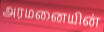
அரமனையின்